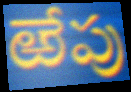
ఱేపు